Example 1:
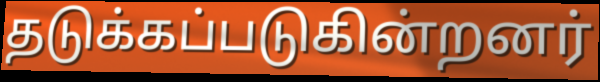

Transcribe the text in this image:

தடுக்கப்படுகின்றனர்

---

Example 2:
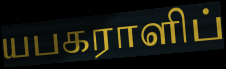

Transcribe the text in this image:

யபகராளிப்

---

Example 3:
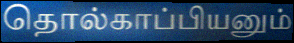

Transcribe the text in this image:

தொல்காப்பியனும்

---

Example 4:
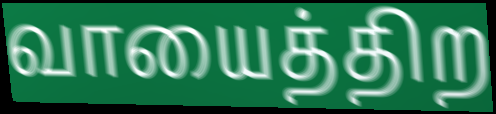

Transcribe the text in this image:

வாயைத்திற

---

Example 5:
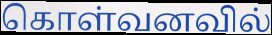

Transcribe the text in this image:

கொள்வனவில்